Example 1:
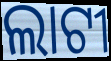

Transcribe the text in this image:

ଲାଟୀ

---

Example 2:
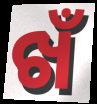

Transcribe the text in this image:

ଖଁ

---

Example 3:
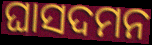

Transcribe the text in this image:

ଘାସଦମନ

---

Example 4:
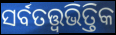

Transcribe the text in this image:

ସର୍ବତତ୍ତ୍ୱଭିତ୍ତିକ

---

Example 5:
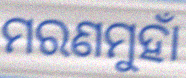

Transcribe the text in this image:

ମରଣମୁହାଁ